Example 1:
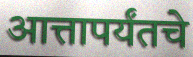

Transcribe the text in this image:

आत्तापर्यंतचे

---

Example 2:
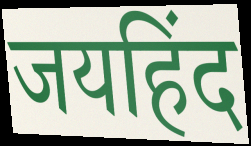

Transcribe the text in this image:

जयहिंद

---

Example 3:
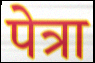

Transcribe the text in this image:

पेत्रा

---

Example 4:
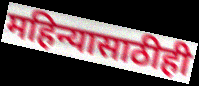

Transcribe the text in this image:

महिन्यासाठीही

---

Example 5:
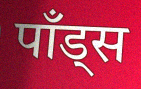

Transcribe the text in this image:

पाँड्स